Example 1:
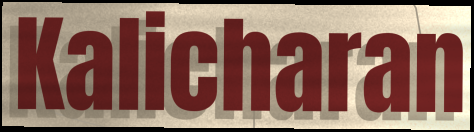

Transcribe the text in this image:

Kalicharan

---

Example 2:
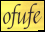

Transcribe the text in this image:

ofufe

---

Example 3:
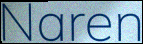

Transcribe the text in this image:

Naren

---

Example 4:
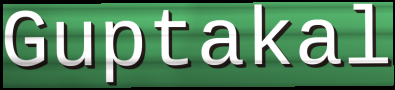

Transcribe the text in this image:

Guptakal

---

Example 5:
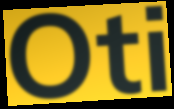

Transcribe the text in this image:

Oti